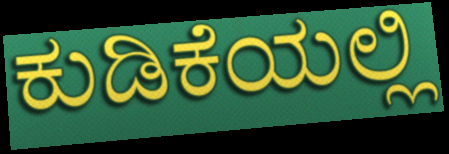
ಕುಡಿಕೆಯಲ್ಲಿ